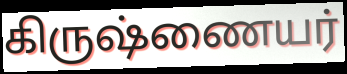
கிருஷ்ணையர்